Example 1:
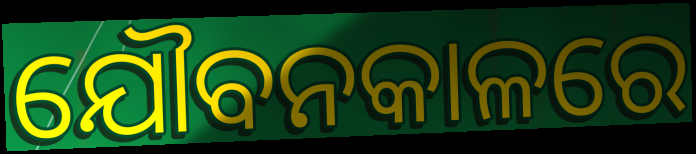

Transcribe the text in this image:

ଯୌବନକାଳରେ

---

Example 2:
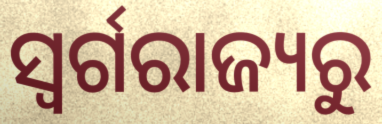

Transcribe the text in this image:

ସ୍ବର୍ଗରାଜ୍ୟରୁ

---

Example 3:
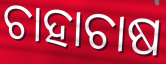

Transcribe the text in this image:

ଚାହାଚାଷ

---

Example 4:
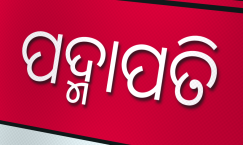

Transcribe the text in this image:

ପଦ୍ମାପତି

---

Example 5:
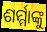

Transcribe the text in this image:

ଶର୍ମ୍ମାଙ୍କୁ